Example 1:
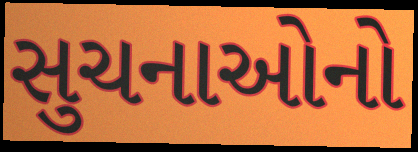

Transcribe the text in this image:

સુચનાઓનો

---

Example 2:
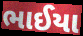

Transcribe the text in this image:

ભાઈયા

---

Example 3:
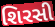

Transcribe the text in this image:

શિરસી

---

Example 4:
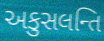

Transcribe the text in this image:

અકુસલન્તિ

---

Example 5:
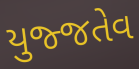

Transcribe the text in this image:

યુજ્જતેવ